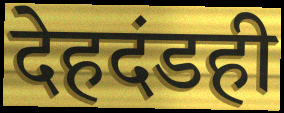
देहदंडही